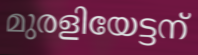
മുരളിയേട്ടന്